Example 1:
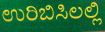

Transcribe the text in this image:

ಉರಿಬಿಸಿಲಲ್ಲಿ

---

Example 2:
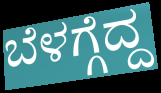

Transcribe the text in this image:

ಬೆಳಗ್ಗೆದ್ದ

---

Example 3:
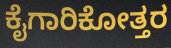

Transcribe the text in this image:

ಕೈಗಾರಿಕೋತ್ತರ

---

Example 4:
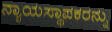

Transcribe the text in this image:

ನ್ಯಾಯಸ್ಥಾಪಕರನ್ನು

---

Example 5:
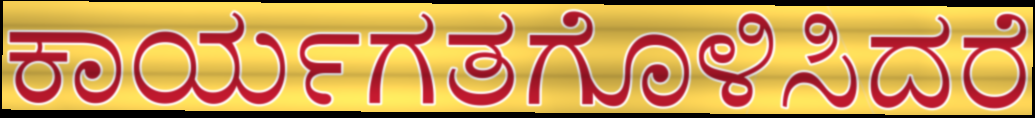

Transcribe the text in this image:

ಕಾರ್ಯಗತಗೊಳಿಸಿದರೆ